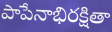
పాపేనాభిరక్షితా